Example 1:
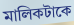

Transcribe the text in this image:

মালিকটাকে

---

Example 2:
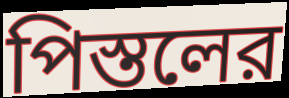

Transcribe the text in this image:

পিস্তলের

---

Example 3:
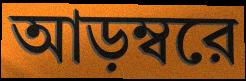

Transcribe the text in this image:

আড়ম্বরে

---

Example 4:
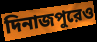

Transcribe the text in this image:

দিনাজপুরেও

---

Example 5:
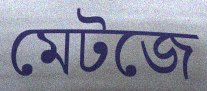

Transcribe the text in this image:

মেটজে